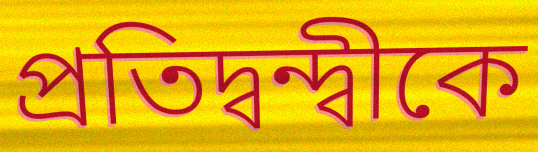
প্রতিদ্বন্দ্বীকে